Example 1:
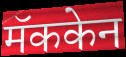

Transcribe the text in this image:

मॅककेन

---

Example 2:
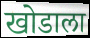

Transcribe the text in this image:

खोडाला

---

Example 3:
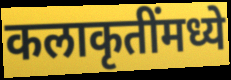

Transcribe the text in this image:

कलाकृतींमध्ये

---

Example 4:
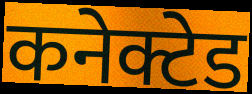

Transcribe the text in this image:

कनेक्टेड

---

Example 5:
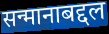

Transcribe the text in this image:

सन्मानाबद्दल